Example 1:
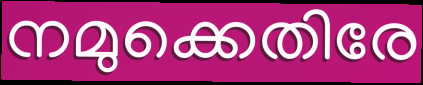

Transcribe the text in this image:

നമുക്കെതിരേ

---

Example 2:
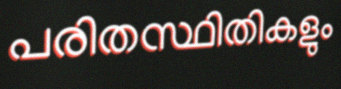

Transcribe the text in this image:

പരിതസ്ഥിതികളും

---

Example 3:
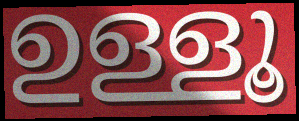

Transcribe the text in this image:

ഉള്ളൂ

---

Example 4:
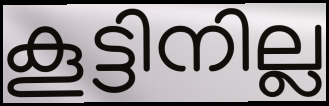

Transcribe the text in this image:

കൂട്ടിനില്ല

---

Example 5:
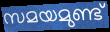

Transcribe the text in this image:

സമയമുണ്ട്